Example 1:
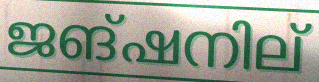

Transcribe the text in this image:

ജങ്ഷനില്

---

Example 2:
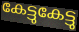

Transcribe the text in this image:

കേട്ടുകേട്ടു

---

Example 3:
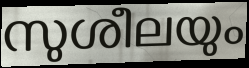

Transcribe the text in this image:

സുശീലയും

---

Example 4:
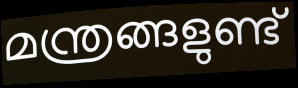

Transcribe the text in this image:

മന്ത്രങ്ങളുണ്ട്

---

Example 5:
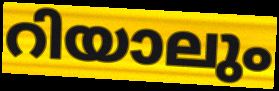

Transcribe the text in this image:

റിയാലും